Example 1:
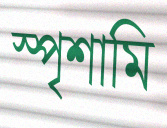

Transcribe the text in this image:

স্পৃশামি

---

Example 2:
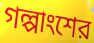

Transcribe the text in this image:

গল্পাংশের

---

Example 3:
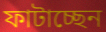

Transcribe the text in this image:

ফাটাচ্ছেন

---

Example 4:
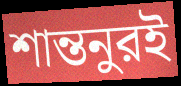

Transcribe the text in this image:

শান্তনুরই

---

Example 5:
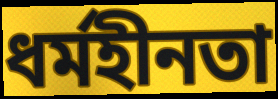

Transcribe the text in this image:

ধর্মহীনতা